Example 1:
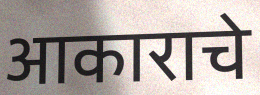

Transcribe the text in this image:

आकाराचे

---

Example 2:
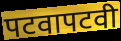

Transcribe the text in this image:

पटवापटवी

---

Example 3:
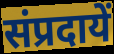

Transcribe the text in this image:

संप्रदायें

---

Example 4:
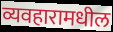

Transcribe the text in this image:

व्यवहारामधील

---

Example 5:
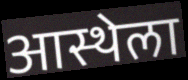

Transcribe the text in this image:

आस्थेला